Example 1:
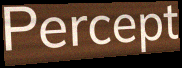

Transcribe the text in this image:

Percept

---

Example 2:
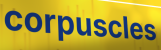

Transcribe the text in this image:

corpuscles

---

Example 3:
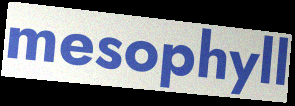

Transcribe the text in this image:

mesophyll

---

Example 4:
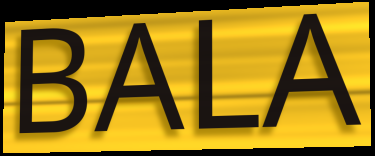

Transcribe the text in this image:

BALA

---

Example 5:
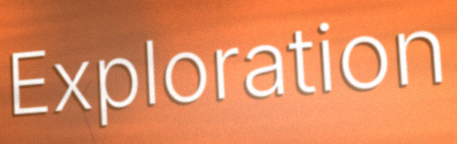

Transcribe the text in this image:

Exploration